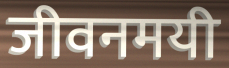
जीवनमयी